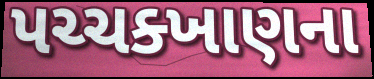
પચ્ચક્ખાણના